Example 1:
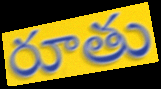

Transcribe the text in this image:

రూతు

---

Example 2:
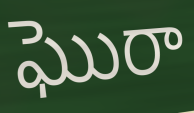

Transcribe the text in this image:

ఘొరా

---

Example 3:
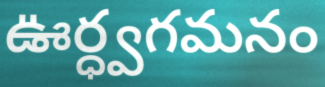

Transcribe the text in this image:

ఊర్ధ్వగమనం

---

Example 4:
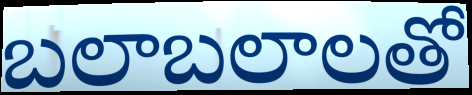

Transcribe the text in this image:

బలాబలాలతో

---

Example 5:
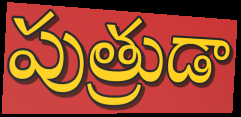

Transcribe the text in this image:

పుత్రుడా